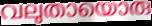
വലുതായൊരു